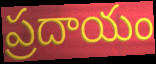
ప్రదాయం